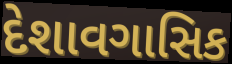
દેશાવગાસિક